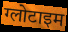
ग्लोटाइम